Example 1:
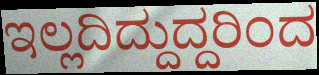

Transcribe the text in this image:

ಇಲ್ಲದಿದ್ದುದ್ದರಿಂದ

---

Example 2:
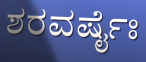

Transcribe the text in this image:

ಶರವರ್ಷೈಃ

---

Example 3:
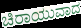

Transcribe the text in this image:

ಚಿರಾಯುವಾದ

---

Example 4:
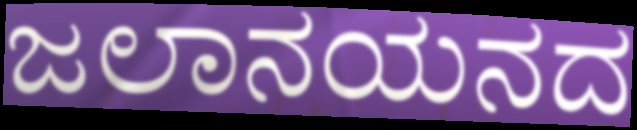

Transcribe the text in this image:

ಜಲಾನಯನದ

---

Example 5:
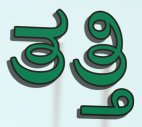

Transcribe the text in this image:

ತತ್ತಿ